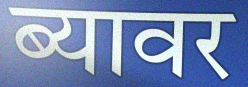
ब्यावर